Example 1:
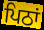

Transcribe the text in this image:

ਪਿਠਾਂ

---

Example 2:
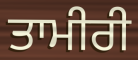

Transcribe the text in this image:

ਤਾਮੀਰੀ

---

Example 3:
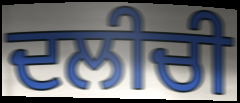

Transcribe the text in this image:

ਦਲੀਚੀ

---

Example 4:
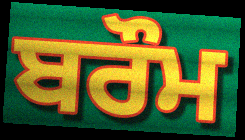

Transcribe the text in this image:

ਬਰੌਮ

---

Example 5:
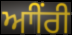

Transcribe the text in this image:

ਆੀਂਰੀ